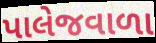
પાલેજવાળા